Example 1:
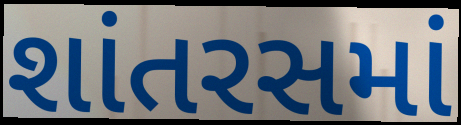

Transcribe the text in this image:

શાંતરસમાં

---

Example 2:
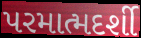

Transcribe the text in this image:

પરમાત્મદર્શી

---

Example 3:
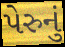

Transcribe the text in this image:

પેરુનું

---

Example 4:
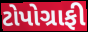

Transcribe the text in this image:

ટોપોગ્રાફી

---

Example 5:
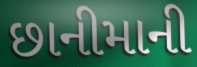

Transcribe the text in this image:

છાનીમાની